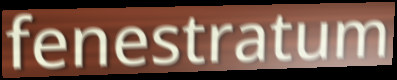
fenestratum